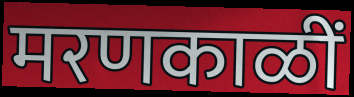
मरणकाळीं